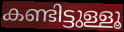
കണ്ടിട്ടുള്ളൂ